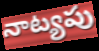
నాట్యపు